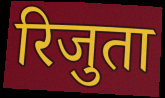
रिजुता